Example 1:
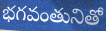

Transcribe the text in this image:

భగవంతునితో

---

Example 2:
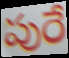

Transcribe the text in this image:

పురే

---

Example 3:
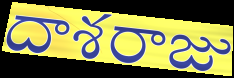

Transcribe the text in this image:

దాశరాజు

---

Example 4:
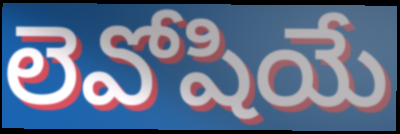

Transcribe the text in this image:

లెవోషియే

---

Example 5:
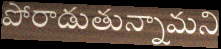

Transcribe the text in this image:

పోరాడుతున్నామని